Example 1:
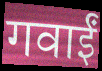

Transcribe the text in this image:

गवाईं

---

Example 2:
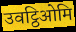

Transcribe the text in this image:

उवट्ठिओमि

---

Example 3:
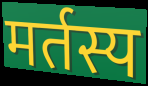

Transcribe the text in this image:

मर्तस्य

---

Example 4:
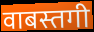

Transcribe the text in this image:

वाबस्तगी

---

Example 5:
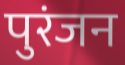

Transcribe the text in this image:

पुरंजन